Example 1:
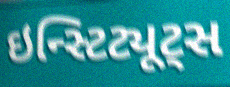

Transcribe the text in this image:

ઇન્સ્ટિટ્યૂટ્સ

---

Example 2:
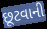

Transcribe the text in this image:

છૂટવાની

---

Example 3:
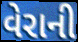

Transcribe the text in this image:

વેરાની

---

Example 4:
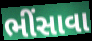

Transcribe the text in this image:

ભીંસાવા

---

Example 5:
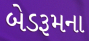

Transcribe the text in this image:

બેડરૂમના